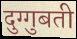
दुग्गुबती